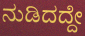
ನುಡಿದದ್ದೇ